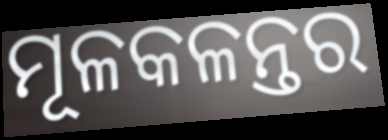
ମୂଳକଳନ୍ତର